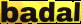
badal